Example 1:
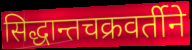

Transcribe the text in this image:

सिद्धान्तचक्रवर्तीने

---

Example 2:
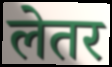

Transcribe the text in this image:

लेतर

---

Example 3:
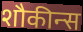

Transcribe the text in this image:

शौकीन्स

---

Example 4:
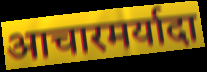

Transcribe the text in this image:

आचारमर्यादा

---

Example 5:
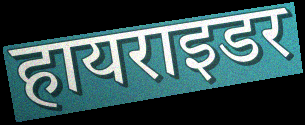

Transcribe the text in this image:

हायराइडर